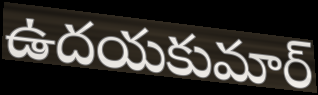
ఉదయకుమార్